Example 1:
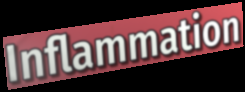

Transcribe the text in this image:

Inflammation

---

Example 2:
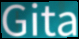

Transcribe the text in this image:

Gita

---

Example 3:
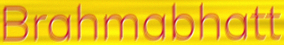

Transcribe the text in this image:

Brahmabhatt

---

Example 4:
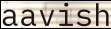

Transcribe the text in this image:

aavish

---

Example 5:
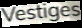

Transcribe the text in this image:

Vestiges